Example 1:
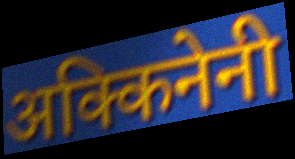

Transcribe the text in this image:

अक्किनेनी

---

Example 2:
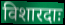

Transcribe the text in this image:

विशारदाः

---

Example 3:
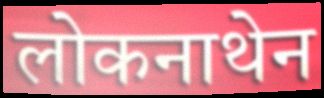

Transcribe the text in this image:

लोकनाथेन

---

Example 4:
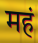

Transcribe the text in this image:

महं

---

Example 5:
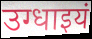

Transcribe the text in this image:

उग्धाइयं